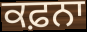
ਕਫ਼ਨਾ